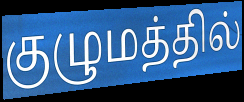
குழுமத்தில்